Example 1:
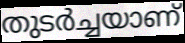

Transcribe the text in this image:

തുടർച്ചയാണ്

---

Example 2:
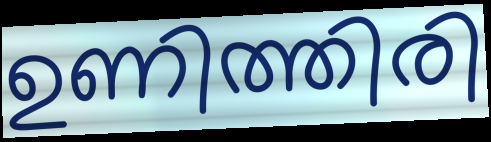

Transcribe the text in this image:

ഉണിത്തിരി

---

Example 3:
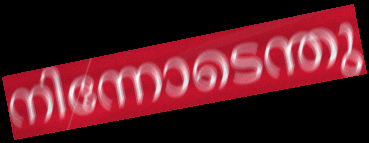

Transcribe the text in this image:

നിന്നോടെന്തു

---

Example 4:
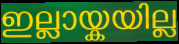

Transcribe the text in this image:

ഇല്ലായ്കയില്ല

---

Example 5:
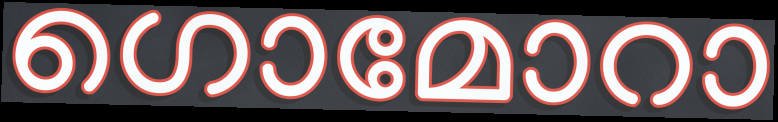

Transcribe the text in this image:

ഗൊമോറാ